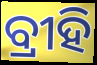
ବ୍ରୀହି